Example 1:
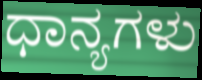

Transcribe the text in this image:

ಧಾನ್ಯಗಳು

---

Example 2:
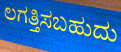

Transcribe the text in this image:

ಲಗತ್ತಿಸಬಹುದು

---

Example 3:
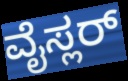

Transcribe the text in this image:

ವೈಸ್ಲರ್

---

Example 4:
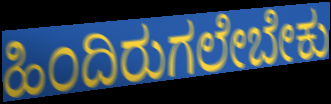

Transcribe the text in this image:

ಹಿಂದಿರುಗಲೇಬೇಕು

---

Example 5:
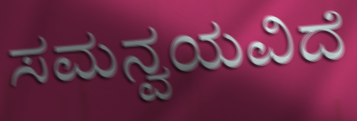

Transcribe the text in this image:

ಸಮನ್ವಯವಿದೆ